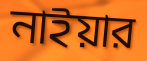
নাইয়ার